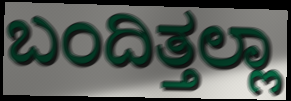
ಬಂದಿತ್ತಲ್ಲಾ